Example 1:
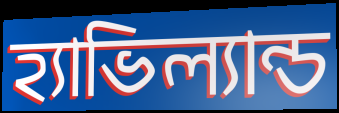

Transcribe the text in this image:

হ্যাভিল্যান্ড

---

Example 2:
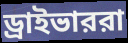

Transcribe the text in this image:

ড্রাইভাররা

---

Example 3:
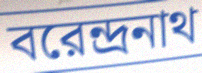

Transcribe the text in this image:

বরেন্দ্রনাথ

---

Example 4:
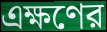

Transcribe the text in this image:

এক্ষণের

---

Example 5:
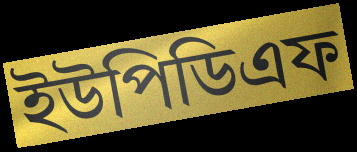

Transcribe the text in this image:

ইউপিডিএফ